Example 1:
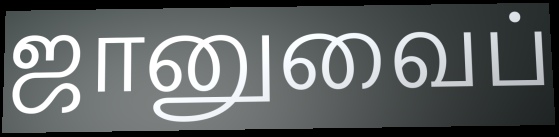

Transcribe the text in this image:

ஜானுவைப்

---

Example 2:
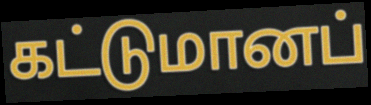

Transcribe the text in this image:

கட்டுமானப்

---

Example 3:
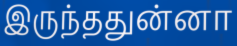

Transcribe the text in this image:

இருந்ததுன்னா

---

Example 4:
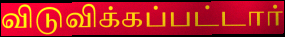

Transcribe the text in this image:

விடுவிக்கப்பட்டார்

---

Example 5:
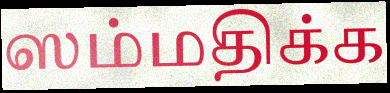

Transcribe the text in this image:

ஸம்மதிக்க